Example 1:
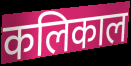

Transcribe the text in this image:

कलिकाल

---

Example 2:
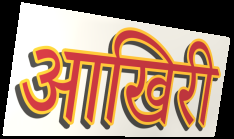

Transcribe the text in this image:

आखिरी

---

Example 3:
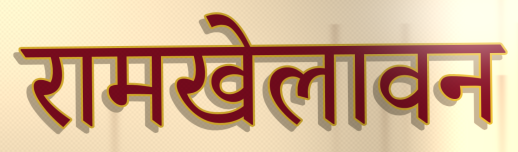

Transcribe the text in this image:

रामखेलावन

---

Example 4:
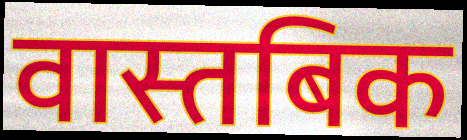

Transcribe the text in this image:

वास्तबिक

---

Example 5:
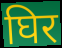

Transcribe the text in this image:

घिर